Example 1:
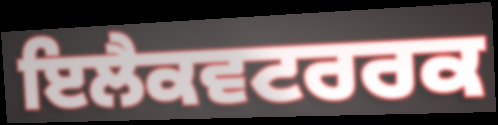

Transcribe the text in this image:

ਇਲੈਕਵਟਰਰਕ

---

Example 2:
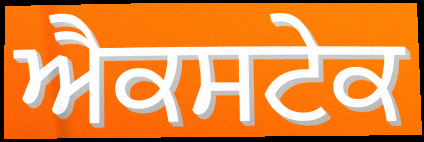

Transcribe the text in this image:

ਐਕਸਟੇਕ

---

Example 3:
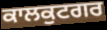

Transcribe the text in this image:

ਕਾਲਕੁਟਗਰ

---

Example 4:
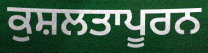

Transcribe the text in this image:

ਕੁਸ਼ਲਤਾਪੂਰਨ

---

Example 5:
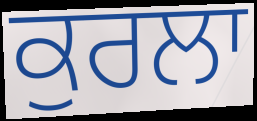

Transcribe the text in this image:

ਕੁਰਲਾ